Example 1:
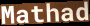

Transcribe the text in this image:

Mathad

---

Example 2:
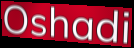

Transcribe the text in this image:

Oshadi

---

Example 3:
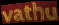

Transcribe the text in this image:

vathu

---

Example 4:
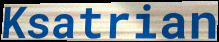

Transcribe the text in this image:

Ksatrian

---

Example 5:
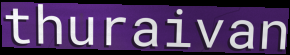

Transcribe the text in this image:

thuraivan